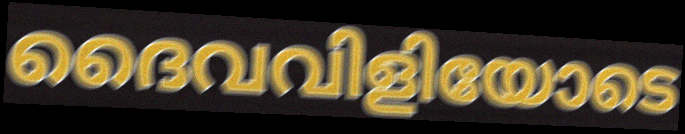
ദൈവവിളിയോടെ